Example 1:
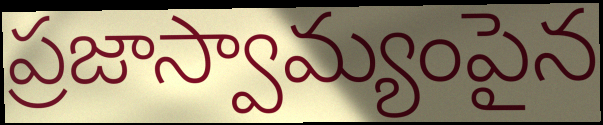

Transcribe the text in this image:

ప్రజాస్వామ్యంపైన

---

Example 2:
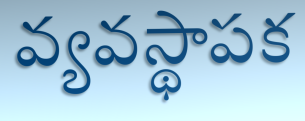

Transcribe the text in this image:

వ్యవస్థాపక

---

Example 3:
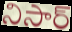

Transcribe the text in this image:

నిసార్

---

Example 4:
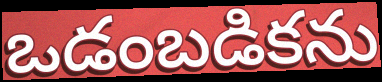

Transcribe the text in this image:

ఒడంబడికను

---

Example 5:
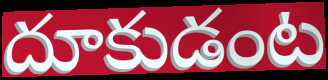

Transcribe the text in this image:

దూకుడంట